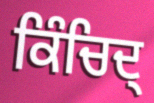
ਕਿੰਚਿਦ੍